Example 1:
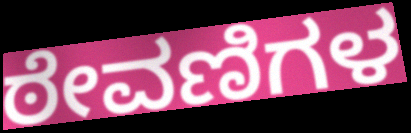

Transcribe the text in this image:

ಠೇವಣಿಗಳ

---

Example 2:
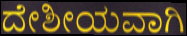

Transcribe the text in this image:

ದೇಶೀಯವಾಗಿ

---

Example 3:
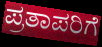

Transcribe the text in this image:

ಪ್ರತಾಪರಿಗೆ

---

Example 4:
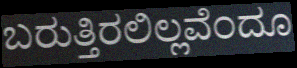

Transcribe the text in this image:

ಬರುತ್ತಿರಲಿಲ್ಲವೆಂದೂ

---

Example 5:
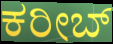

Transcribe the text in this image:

ಕರೀಬ್